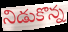
నిడుకొన్న